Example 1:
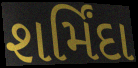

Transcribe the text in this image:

શર્મિંદા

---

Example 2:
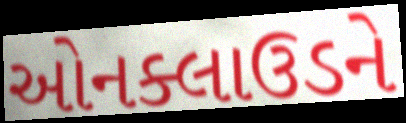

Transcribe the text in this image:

ઓનક્લાઉડને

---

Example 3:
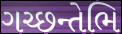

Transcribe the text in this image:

ગચ્છન્તેભિ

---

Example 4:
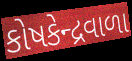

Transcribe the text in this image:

કોષકેન્દ્રવાળા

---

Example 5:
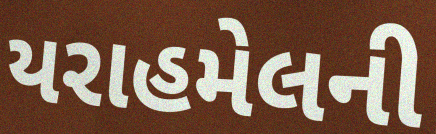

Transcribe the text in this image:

યરાહમેલની